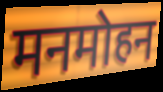
मनमोहन